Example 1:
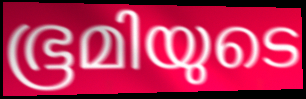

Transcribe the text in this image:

ഭൂമിയുടെ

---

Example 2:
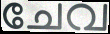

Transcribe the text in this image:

ചേവ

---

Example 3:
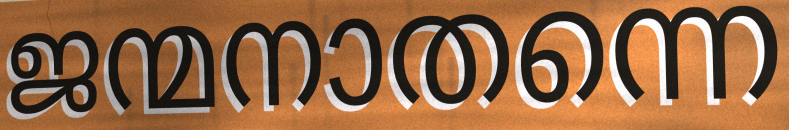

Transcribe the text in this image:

ജന്മനാതന്നെ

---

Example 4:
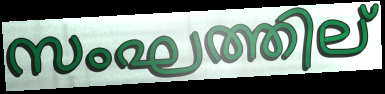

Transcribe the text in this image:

സംഘത്തില്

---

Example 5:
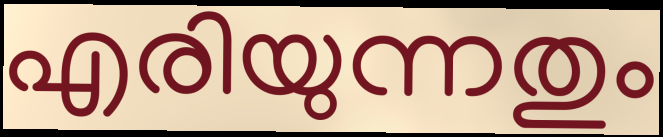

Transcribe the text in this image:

എരിയുന്നതും